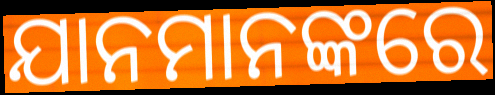
ଯାନମାନଙ୍କରେ